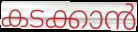
കടക്കാൻ